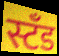
स्टॅंड